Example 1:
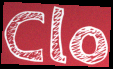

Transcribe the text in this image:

Clo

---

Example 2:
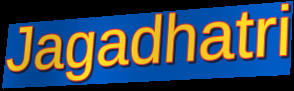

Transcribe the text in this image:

Jagadhatri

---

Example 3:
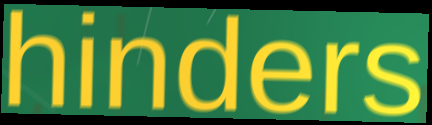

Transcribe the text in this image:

hinders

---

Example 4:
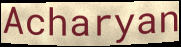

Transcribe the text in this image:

Acharyan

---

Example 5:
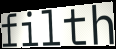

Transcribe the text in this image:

filth